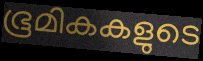
ഭൂമികകളുടെ